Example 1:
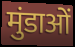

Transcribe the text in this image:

मुंडाओं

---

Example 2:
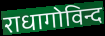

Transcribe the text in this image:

राधागोविन्द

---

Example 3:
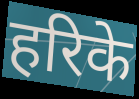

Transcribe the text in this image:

हरिके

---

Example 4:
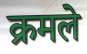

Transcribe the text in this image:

क्रमले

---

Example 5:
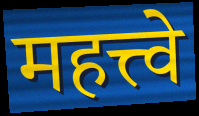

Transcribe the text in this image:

महत्त्वे